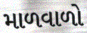
માળવાળો